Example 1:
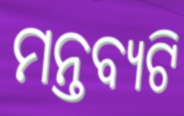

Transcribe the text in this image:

ମନ୍ତବ୍ୟଟି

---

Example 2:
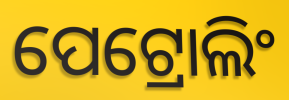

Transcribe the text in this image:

ପେଟ୍ରୋଲିଂ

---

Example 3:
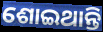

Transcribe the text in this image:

ଶୋଇଥାନ୍ତି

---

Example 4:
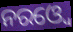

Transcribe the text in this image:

ନରଓ୍ୱେ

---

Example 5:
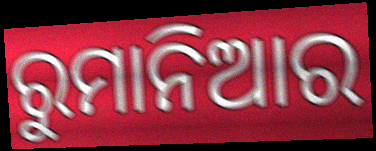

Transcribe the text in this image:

ରୁମାନିଆର